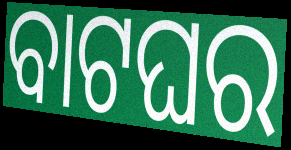
ବାଟଘର